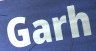
Garh